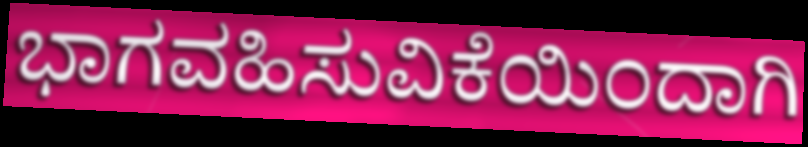
ಭಾಗವಹಿಸುವಿಕೆಯಿಂದಾಗಿ